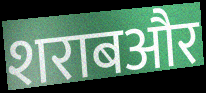
शराबऔर